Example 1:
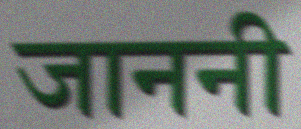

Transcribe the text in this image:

जाननी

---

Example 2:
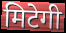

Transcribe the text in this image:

मिटेगी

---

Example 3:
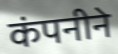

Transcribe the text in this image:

कंपनीने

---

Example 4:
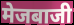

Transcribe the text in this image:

मेजबाजी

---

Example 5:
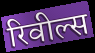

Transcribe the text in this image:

रिवील्स